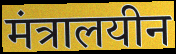
मंत्रालयीन